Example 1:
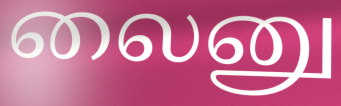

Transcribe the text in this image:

லைனு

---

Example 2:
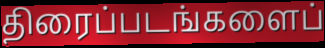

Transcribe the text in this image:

திரைப்படங்களைப்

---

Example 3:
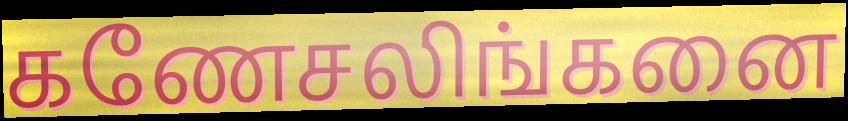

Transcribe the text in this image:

கணேசலிங்கனை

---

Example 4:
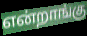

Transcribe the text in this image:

என்றாங்கு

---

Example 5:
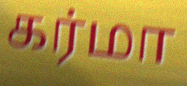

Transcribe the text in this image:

கர்மா